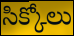
సిక్కోలు